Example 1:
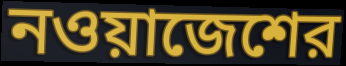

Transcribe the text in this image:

নওয়াজেশের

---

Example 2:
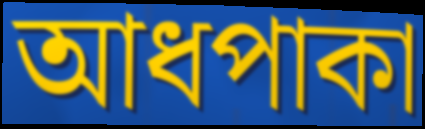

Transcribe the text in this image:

আধপাকা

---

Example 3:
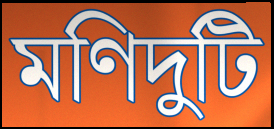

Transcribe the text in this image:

মণিদুটি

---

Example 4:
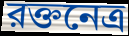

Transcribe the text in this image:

রক্তনেত্র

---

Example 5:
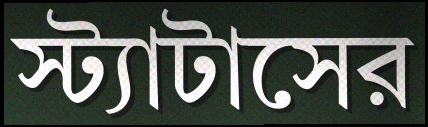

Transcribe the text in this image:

স্ট্যাটাসের